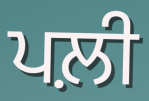
ਪਲ਼ੀ